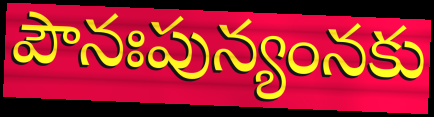
పౌనఃపున్యంనకు